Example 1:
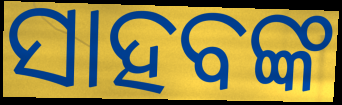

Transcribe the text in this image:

ସାହବଙ୍କ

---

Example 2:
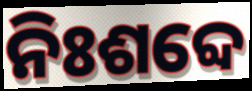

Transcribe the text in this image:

ନିଃଶବ୍ଦେ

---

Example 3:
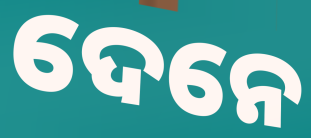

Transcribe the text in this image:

ଦେନେ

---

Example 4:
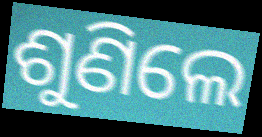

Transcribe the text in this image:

ଶୁଣିଲେ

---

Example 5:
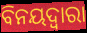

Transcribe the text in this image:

ବିନୟଦ୍ୱାରା